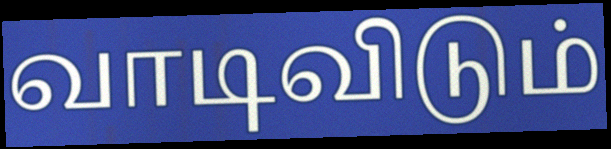
வாடிவிடும்